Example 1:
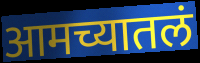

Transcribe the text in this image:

आमच्यातलं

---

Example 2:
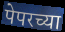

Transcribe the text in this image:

पेपरच्या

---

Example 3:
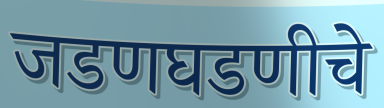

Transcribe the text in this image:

जडणघडणीचे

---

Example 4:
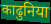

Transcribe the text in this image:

काढुनिया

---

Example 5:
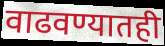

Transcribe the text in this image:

वाढवण्यातही